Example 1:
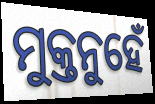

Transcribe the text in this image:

ମୁକ୍ତନୁହେଁ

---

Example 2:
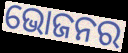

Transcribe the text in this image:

ଭୋଜନର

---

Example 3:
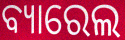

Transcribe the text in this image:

ବ୍ୟାରେଲ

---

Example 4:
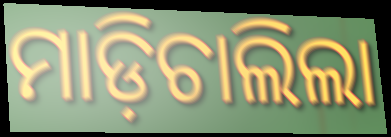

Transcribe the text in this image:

ମାଡ଼ିଚାଲିଲା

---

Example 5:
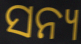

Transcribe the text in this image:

ସନ୍ୟ